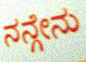
ನನ್ಗೇನು